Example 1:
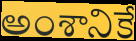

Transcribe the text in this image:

అంశానికే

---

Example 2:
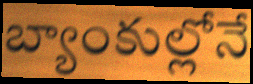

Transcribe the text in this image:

బ్యాంకుల్లోనే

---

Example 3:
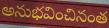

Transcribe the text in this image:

అనుభవించినంత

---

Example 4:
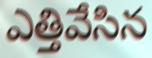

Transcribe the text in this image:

ఎత్తివేసిన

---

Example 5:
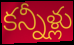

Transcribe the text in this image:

కన్నీళ్లు